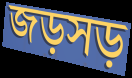
জড়সড়